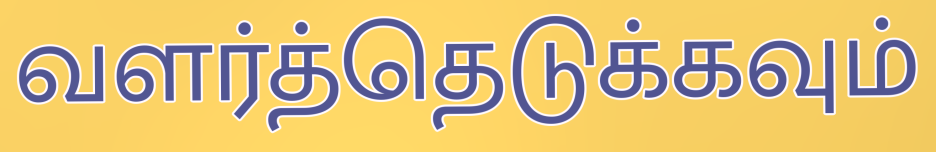
வளர்த்தெடுக்கவும்